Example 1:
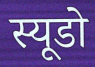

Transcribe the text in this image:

स्यूडो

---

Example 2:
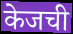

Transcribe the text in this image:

केजची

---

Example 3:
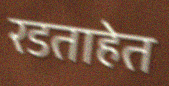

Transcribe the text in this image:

रडताहेत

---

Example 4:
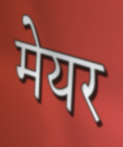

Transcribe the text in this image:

मेयर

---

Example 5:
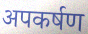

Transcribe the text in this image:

अपकर्षण